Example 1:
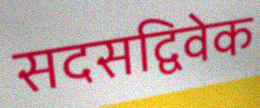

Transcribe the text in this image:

सदसद्विवेक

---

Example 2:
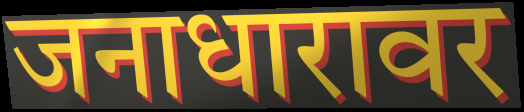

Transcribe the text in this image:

जनाधारावर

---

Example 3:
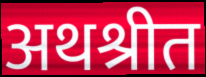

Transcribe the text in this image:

अथश्रीत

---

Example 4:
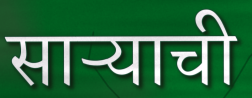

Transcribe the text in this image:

साऱ्याची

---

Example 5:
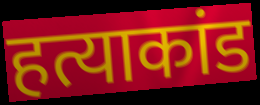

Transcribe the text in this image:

हत्याकांड